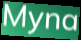
Myna